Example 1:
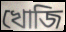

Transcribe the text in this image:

খোজি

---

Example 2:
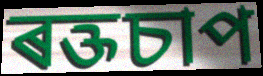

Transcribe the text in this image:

ৰক্তচাপ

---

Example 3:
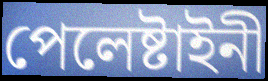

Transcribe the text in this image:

পেলেষ্টাইনী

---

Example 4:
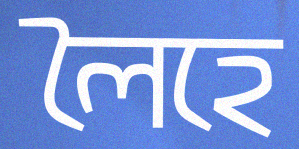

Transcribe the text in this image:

লৈহে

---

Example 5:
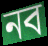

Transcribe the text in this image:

নব